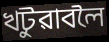
খটুৱাবলৈ